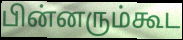
பின்னரும்கூட